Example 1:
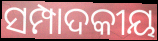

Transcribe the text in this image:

ସମ୍ପାଦକୀୟ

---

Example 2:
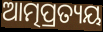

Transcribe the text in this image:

ଆତ୍ମପ୍ରତ୍ୟୟ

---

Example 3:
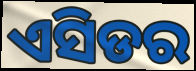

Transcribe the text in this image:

ଏସିଡର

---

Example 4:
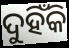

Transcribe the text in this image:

ଦୁହିଁକି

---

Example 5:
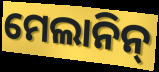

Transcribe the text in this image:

ମେଲାନିନ୍